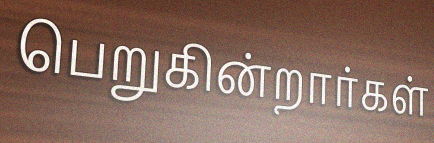
பெறுகின்றார்கள்